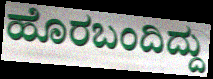
ಹೊರಬಂದಿದ್ದು